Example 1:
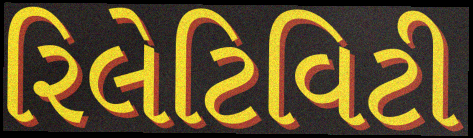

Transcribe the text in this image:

રિલેટિવિટી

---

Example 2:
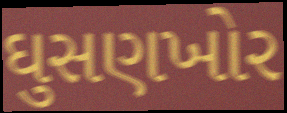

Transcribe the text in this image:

ઘુસણખોર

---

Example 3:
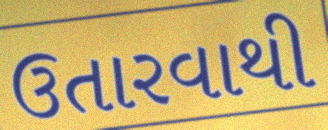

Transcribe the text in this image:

ઉતારવાથી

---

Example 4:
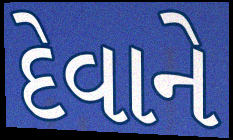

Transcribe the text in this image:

દેવાને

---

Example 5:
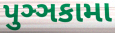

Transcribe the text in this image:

પુઞ્ઞકામા